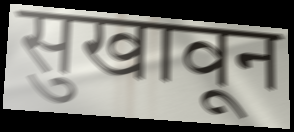
सुखावून